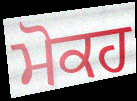
ਮੋਕਹ